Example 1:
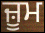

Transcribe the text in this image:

ਜ਼ੂਮ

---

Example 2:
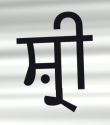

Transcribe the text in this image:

ਸ਼੍ਰੀ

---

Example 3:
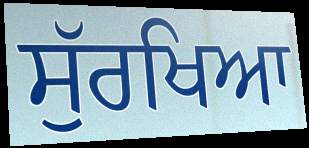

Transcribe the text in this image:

ਸੁੱਰਖਿਆ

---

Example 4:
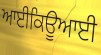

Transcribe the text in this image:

ਆਈਕਿਊਆਈ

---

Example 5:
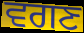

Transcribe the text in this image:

ਵਗਣ